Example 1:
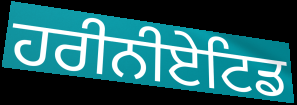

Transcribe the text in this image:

ਹਰੀਨੀਏਟਿਡ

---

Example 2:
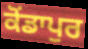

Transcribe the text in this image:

ਕੋਂਡਾਪੁਰ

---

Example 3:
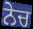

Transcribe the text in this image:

ਨੇਚ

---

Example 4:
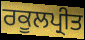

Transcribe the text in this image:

ਰਕੂਲਪ੍ਰੀਤ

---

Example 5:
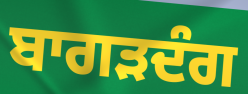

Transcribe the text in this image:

ਬਾਗੜਦੰਗ